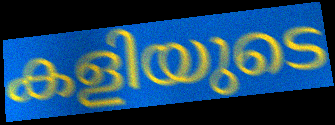
കളിയുടെ